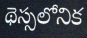
థెస్సలోనిక